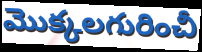
మొక్కలగురించీ